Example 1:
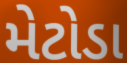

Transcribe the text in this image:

મેટોડા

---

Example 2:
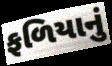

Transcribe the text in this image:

ફળિયાનું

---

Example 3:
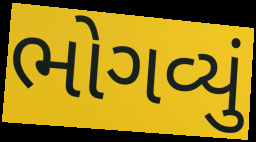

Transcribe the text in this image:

ભોગવ્યું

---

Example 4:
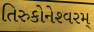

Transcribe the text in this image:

તિરુકોનેશ્‍વરમ્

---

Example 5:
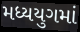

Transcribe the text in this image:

મધ્યયુગમાં